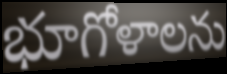
భూగోళాలను